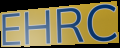
EHRC